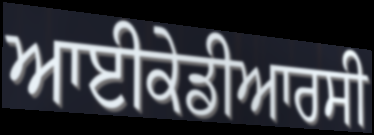
ਆਈਕੇਡੀਆਰਸੀ